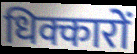
धिक्कारों